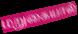
மறுகையால்